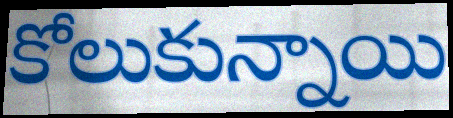
కోలుకున్నాయి